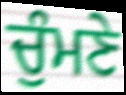
ਚੁੰਮਣੇ